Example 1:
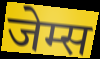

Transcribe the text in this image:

जेम्स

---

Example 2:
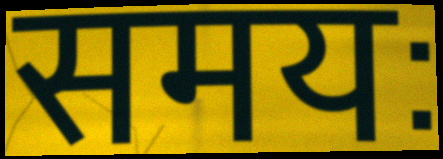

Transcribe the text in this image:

समयः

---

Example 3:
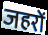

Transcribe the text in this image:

जहरों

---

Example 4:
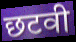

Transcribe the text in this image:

छटवी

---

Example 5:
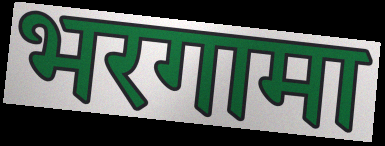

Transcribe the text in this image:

भरगामा